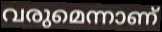
വരുമെന്നാണ്